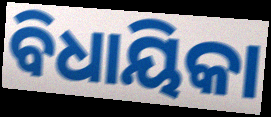
ବିଧାୟିକା